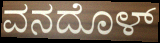
ವನದೊಳ್